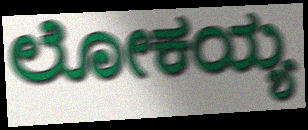
ಲೋಕಯ್ಯ